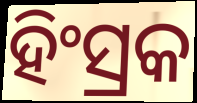
ହିଂସ୍ରକ